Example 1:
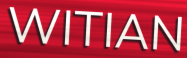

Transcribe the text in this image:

WITIAN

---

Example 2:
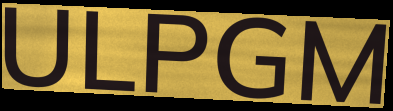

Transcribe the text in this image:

ULPGM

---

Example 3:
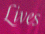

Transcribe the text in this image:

Lives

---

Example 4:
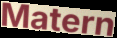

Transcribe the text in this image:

Matern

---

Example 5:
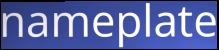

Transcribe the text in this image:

nameplate